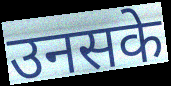
उनसके